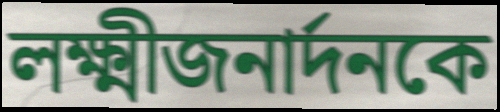
লক্ষ্মীজনার্দনকে